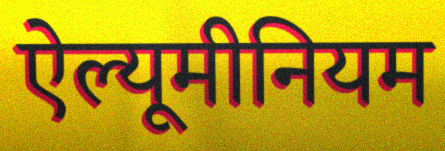
ऐल्यूमीनियम